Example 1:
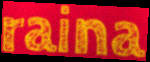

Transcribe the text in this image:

raina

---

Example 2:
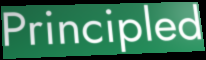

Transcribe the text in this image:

Principled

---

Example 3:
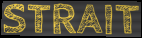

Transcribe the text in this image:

STRAIT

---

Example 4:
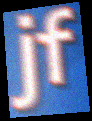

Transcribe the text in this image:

jf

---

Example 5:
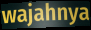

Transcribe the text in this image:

wajahnya